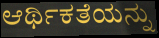
ಆರ್ಥಿಕತೆಯನ್ನು